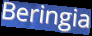
Beringia